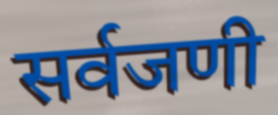
सर्वजणी